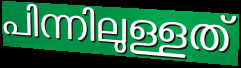
പിന്നിലുള്ളത്